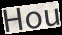
Hou